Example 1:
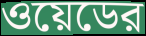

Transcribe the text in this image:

ওয়েডের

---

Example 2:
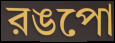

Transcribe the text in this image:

রঙপো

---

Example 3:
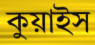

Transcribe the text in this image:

কুয়াইস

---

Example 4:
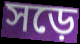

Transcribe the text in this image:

সড়ে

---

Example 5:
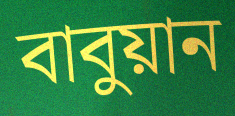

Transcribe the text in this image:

বাবুয়ান